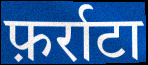
फ़र्राटा